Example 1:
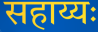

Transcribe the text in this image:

सहाय्यः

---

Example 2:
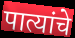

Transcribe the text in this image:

पात्यांचे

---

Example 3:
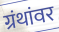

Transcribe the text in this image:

ग्रंथांवर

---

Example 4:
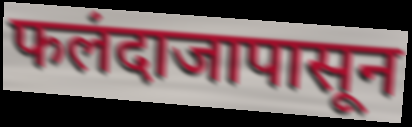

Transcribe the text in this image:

फलंदाजापासून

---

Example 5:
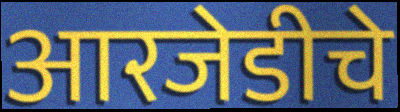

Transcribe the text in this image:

आरजेडीचे